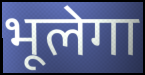
भूलेगा